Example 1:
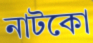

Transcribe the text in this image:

নাটকো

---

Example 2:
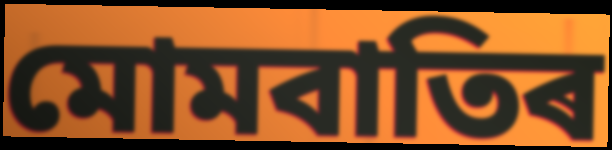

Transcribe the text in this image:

মোমবাতিৰ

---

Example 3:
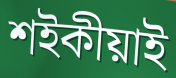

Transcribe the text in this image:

শইকীয়াই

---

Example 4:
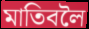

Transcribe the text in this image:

মাতিবলৈ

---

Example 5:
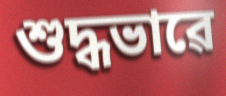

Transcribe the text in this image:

শুদ্ধভাৱে